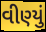
વીણ્યું